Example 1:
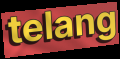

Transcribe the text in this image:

telang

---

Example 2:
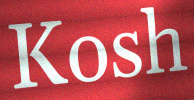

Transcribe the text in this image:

Kosh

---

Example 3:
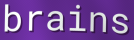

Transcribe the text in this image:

brains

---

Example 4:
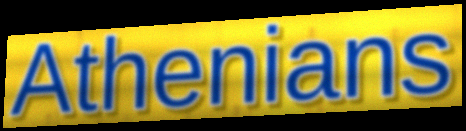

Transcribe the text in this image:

Athenians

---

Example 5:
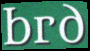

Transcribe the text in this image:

brd